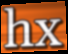
hx